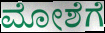
ಮೋಶೆಗೆ